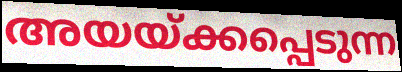
അയയ്ക്കപ്പെടുന്ന